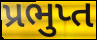
પ્રભુપ્ત